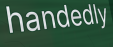
handedly